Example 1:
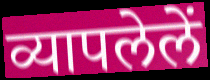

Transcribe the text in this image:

व्यापलेलें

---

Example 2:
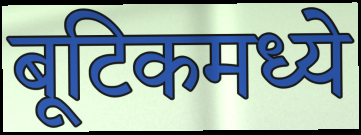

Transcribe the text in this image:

बूटिकमध्ये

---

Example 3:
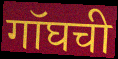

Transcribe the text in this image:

गॉघची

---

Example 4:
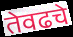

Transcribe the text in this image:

तेवढचे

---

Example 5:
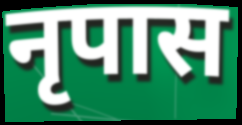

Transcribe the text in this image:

नृपास